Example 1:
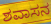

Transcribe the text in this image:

ಶವಾಸನ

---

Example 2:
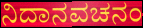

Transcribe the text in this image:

ನಿದಾನವಚನಂ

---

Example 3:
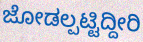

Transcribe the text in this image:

ಜೋಡಲ್ಪಟ್ಟಿದ್ದೀರಿ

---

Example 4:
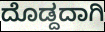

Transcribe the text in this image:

ದೊಡ್ದದಾಗಿ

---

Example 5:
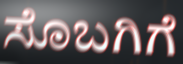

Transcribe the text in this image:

ಸೊಬಗಿಗೆ